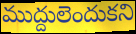
ముద్దులెందుకని